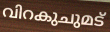
വിറകുചുമട്